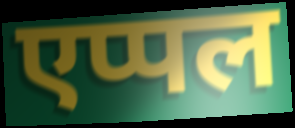
एप्पल